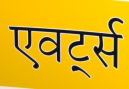
एवर्ट्स